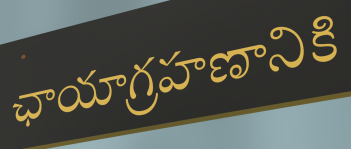
ఛాయాగ్రహణానికి